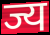
ज्य